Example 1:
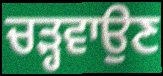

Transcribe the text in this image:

ਚੜ੍ਹਵਾਉਣ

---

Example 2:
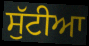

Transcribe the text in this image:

ਸੁੱਟੀਆ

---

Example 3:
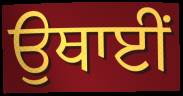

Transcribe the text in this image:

ਉਥਾਈਂ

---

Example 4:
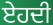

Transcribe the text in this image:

ਏਹਦੀ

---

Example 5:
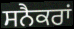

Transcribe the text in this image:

ਸਨੈਕਰਾਂ